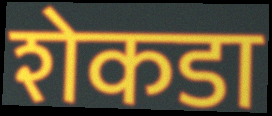
शेकडा